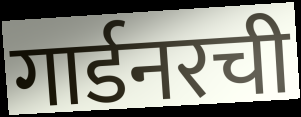
गार्डनरची